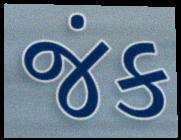
જંક